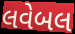
લવેબલ